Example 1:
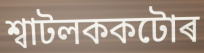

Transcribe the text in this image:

শ্বাটলককটোৰ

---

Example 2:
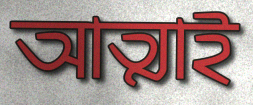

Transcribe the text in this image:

আত্মাই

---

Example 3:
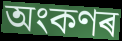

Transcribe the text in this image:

অংকণৰ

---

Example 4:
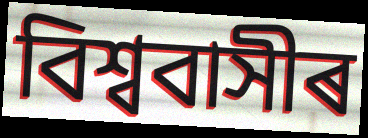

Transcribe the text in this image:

বিশ্ববাসীৰ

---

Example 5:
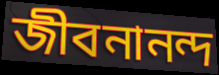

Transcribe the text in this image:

জীবনানন্দ